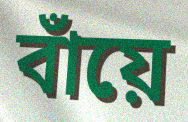
বাঁয়ে